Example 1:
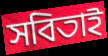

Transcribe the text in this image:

সবিতাই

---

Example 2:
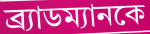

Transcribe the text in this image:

ব্র্যাডম্যানকে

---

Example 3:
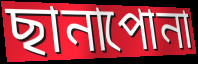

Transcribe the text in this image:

ছানাপোনা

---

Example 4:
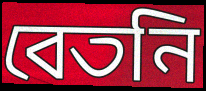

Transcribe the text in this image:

বেতনি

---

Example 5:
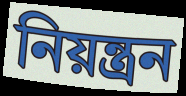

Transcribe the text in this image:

নিয়ন্ত্রন